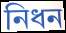
নিধন